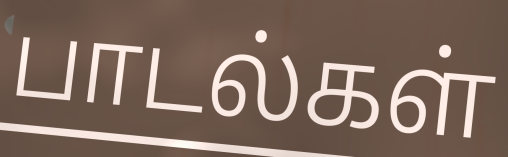
பாடல்கள்